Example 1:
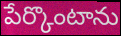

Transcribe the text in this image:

పేర్కొంటాను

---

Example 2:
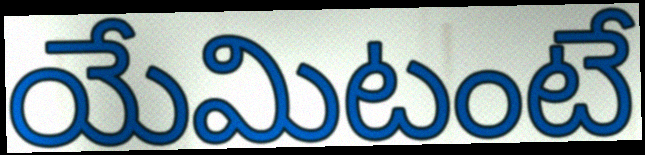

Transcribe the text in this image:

యేమిటంటే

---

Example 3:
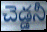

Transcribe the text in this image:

చెడ్డనీ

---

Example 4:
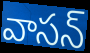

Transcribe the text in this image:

వాసన్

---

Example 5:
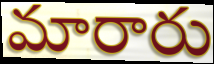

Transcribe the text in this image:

మారారు